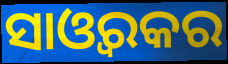
ସାଓ୍ୱରକର